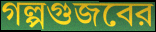
গল্পগুজবের